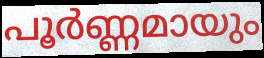
പൂർണ്ണമായും